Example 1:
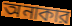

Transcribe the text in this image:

অনাকার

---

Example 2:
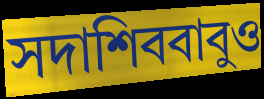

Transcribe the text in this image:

সদাশিববাবুও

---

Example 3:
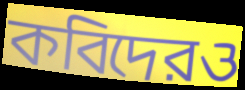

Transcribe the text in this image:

কবিদেরও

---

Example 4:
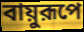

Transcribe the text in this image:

বায়ুরূপে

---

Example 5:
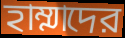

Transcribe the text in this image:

হাম্মাদের